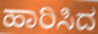
ಹಾರಿಸಿದ